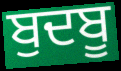
ਬੁਦਬੂ